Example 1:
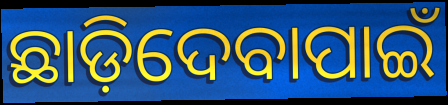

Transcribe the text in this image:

ଛାଡ଼ିଦେବାପାଇଁ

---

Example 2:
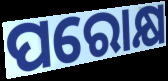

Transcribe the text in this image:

ପରୋକ୍ଷ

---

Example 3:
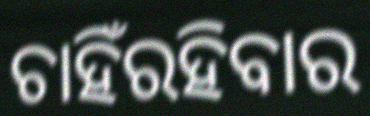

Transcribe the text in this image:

ଚାହିଁରହିବାର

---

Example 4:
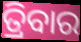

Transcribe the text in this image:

ତ୍ରିବାର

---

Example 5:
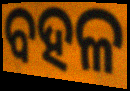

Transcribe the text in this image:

ବହଳ